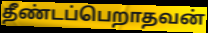
தீண்டப்பெறாதவன்